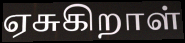
ஏசுகிறாள்